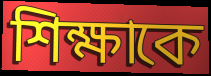
শিক্ষাকে